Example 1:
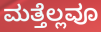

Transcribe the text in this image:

ಮತ್ತೆಲ್ಲವೂ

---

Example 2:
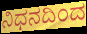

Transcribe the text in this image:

ನಿಧನದಿಂದ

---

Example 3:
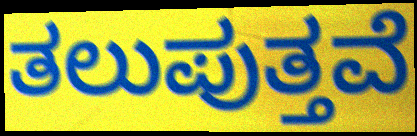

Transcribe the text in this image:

ತಲುಪುತ್ತವೆ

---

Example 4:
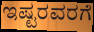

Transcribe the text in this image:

ಇಷ್ಟರವರಗೆ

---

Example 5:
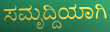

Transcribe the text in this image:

ಸಮೃದ್ದಿಯಾಗಿ